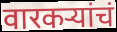
वारकऱ्यांचं